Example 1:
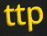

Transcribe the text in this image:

ttp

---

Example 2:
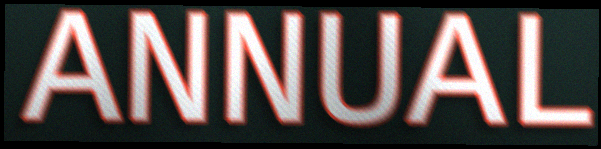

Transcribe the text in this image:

ANNUAL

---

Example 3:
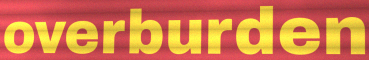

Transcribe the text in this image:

overburden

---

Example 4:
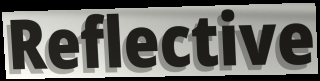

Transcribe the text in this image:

Reflective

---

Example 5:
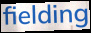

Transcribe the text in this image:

fielding